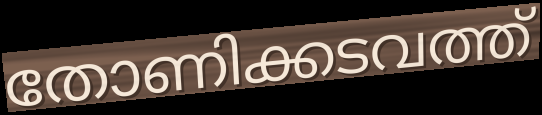
തോണിക്കടവത്ത്